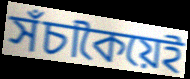
সঁচাকৈয়েই